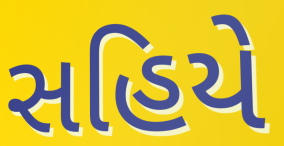
સહિયે